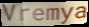
Vremya